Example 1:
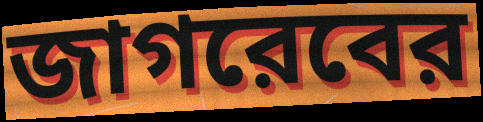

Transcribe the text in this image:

জাগরেবের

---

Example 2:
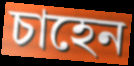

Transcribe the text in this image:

চাহেন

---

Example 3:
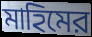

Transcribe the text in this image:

মাহিমের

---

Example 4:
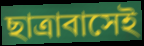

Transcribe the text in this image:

ছাত্রাবাসেই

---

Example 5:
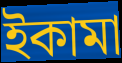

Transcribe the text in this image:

ইকামা